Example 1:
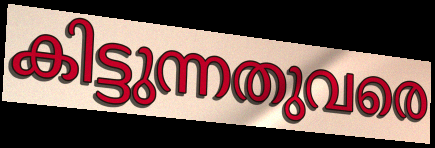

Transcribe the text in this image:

കിട്ടുന്നതുവരെ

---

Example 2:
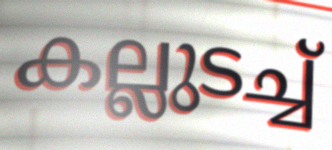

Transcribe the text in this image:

കല്ലുടച്ച്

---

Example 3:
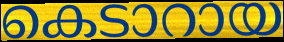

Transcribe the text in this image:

കെടാറായ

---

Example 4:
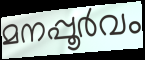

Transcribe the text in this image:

മനപ്പൂർവം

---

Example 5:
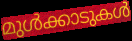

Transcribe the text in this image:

മുൾക്കാടുകൾ